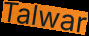
Talwar